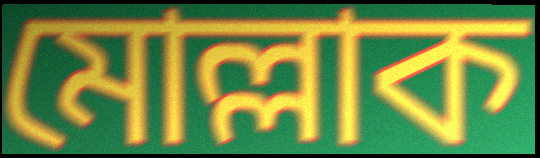
মোল্লাক